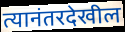
त्यानंतरदेखील